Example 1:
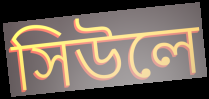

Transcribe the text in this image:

সিউলে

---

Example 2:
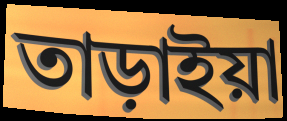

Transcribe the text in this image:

তাড়াইয়া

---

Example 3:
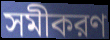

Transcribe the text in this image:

সমীকরণ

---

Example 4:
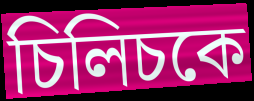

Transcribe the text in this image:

চিলিচকে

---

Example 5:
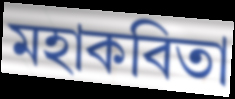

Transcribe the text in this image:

মহাকবিতা